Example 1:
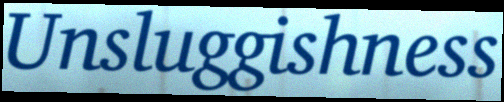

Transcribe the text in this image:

Unsluggishness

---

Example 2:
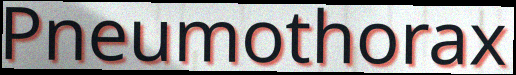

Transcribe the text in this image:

Pneumothorax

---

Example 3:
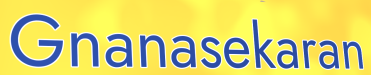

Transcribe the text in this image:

Gnanasekaran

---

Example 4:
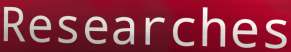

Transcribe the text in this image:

Researches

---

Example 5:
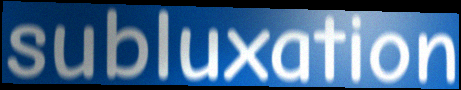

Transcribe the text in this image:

subluxation